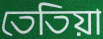
তেতিয়া